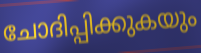
ചോദിപ്പിക്കുകയും